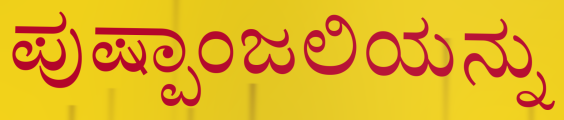
ಪುಷ್ಪಾಂಜಲಿಯನ್ನು